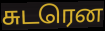
சுடரென